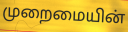
முறைமையின்